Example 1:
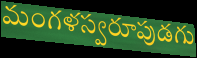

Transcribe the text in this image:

మంగళస్వరూపుడగు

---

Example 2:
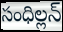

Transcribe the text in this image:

సంధిల్లన్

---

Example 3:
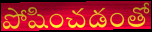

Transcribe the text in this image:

పోషించడంతో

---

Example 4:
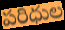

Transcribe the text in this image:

పరిధుల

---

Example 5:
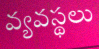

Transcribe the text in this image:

వ్యవస్థలు